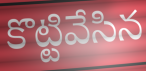
కొట్టివేసిన